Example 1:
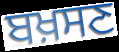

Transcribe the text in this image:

ਬਖ਼ਸਣ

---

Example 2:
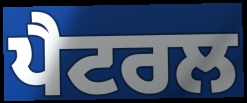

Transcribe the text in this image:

ਪੈਟਰਲ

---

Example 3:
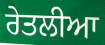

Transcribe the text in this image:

ਰੇਤਲੀਆ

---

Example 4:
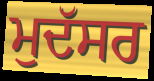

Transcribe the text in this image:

ਮੁਦੱਸਰ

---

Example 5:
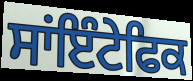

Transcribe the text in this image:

ਸਾਂਇੰਟੇਫਿਕ